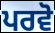
ਪਰਵੋ